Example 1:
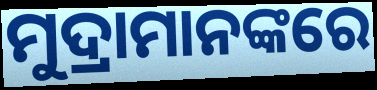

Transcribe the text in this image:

ମୁଦ୍ରାମାନଙ୍କରେ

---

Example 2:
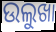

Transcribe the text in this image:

ଉଲୁଖା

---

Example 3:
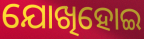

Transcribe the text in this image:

ଯୋଖିହୋଇ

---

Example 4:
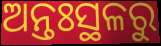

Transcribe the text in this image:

ଅନ୍ତଃସ୍ଥଳରୁ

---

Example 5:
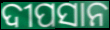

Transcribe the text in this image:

ଦୀପସାନ